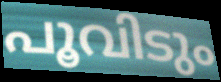
പൂവിടും